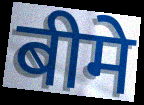
बीमे